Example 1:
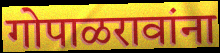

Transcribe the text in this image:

गोपाळरावांना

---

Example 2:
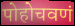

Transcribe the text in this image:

पोहोचवणं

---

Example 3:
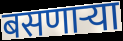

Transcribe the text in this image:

बसणार्‍या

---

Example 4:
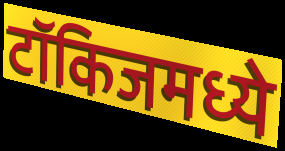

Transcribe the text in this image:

टॉकिजमध्ये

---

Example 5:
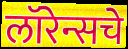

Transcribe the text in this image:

लॉरेन्सचे